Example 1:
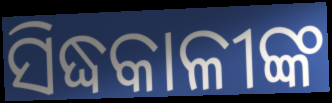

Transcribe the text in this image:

ସିଦ୍ଧକାଳୀଙ୍କ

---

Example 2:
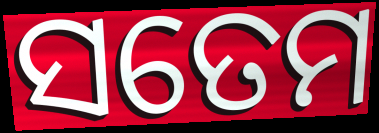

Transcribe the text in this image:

ସତେମ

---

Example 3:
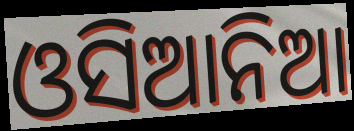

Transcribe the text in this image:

ଓସିଆନିଆ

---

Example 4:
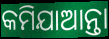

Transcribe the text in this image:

କମିଯାଆନ୍ତା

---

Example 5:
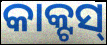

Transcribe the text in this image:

କାକ୍ଟସ୍